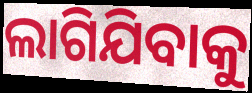
ଲାଗିଯିବାକୁ